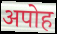
अपोह